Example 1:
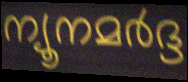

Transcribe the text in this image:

ന്യൂനമർദ്ദ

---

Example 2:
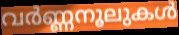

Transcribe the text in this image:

വർണ്ണനൂലുകൾ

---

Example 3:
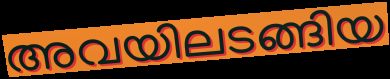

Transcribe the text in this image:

അവയിലടങ്ങിയ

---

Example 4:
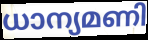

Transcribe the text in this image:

ധാന്യമണി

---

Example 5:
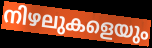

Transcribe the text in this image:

നിഴലുകളെയും